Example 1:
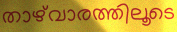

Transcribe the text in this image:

താഴ്‌വാരത്തിലൂടെ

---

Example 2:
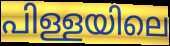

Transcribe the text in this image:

പിള്ളയിലെ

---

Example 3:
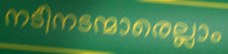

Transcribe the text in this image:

നടീനടന്മാരെല്ലാം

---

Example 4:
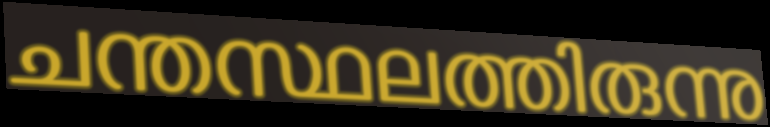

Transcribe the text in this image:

ചന്തസ്ഥലത്തിരുന്നു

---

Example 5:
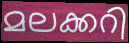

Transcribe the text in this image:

മലക്കറി